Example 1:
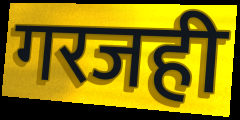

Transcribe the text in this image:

गरजही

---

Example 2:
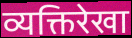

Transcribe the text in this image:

व्यक्तिरेखा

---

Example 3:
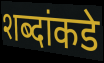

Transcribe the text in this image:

शब्दांकडे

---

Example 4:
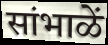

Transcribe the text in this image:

सांभाळें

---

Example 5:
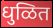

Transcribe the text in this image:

धुळित